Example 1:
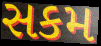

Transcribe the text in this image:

સકમ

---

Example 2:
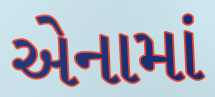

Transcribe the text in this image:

એનામાં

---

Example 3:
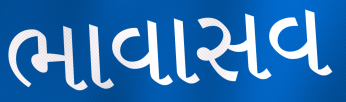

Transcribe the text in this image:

ભાવાસવ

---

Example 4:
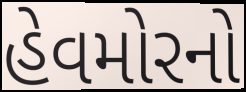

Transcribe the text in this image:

હેવમોરનો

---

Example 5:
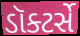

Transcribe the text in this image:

ડૉક્ટર્સે